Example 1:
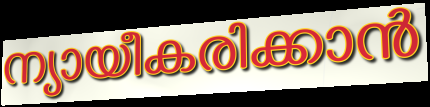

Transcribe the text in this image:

ന്യായീകരിക്കാൻ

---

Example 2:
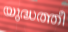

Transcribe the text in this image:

യുദ്ധത്തീ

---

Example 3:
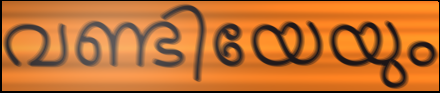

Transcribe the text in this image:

വണ്ടിയേയും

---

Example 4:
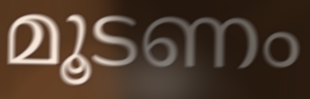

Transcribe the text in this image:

മൂടണം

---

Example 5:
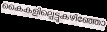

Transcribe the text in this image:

കൈകളില്പെട്ടുകഴിഞ്ഞോ